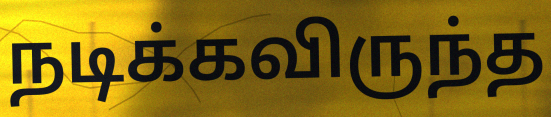
நடிக்கவிருந்த